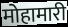
मोहामारी